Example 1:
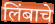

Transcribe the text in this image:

लिंबाचे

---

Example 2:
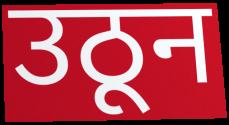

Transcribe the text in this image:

उठून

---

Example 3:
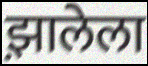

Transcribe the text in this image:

झ़ालेला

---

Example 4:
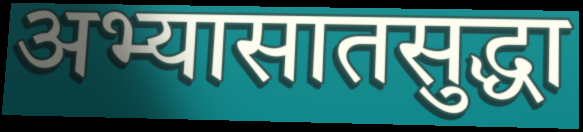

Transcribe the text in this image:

अभ्यासातसुद्धा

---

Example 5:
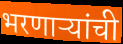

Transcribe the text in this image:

भरणाऱ्यांची